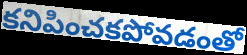
కనిపించకపోవడంతో